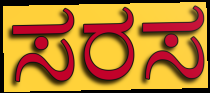
ಸರಸ